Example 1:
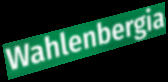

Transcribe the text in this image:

Wahlenbergia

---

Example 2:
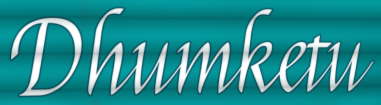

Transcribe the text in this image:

Dhumketu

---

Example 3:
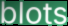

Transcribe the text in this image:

blots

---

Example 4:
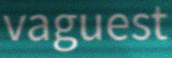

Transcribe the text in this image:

vaguest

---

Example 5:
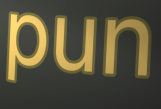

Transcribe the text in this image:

pun